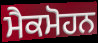
ਮੈਕਮੋਹਨ